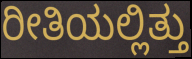
ರೀತಿಯಲ್ಲಿತ್ತು